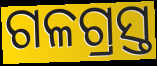
ଗଳଗ୍ରସ୍ତ